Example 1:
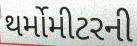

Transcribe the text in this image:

થર્મોમીટરની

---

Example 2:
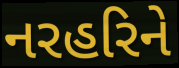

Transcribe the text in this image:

નરહરિને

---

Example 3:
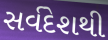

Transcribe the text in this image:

સર્વદેશથી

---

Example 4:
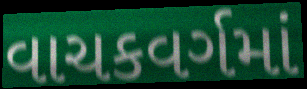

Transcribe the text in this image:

વાચકવર્ગમાં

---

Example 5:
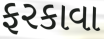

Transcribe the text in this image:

ફરકાવા